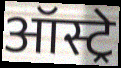
ऑस्ट्रे